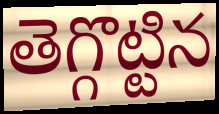
తెగ్గొట్టిన